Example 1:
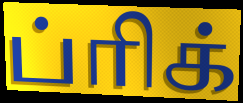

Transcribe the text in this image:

ப்ரிக்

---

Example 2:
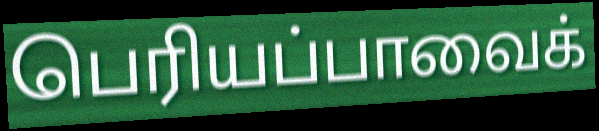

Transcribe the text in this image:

பெரியப்பாவைக்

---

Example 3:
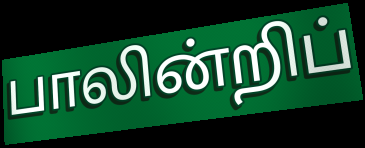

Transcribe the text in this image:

பாலின்றிப்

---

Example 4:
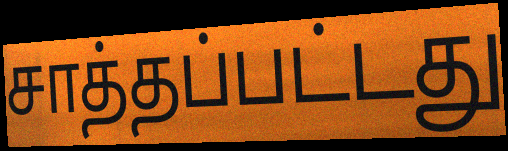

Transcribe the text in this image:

சாத்தப்பட்டது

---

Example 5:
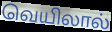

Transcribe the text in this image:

வெயிலால்